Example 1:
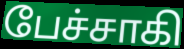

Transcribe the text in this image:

பேச்சாகி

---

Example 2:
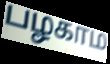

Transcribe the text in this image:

பழகாம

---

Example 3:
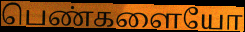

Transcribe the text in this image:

பெண்களையோ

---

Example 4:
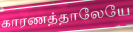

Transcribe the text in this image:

காரணத்தாலேயே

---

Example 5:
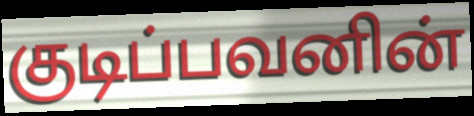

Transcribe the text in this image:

குடிப்பவனின்